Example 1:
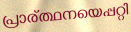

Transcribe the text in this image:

പ്രാര്ത്ഥനയെപ്പറ്റി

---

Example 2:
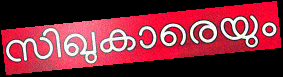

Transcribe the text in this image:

സിഖുകാരെയും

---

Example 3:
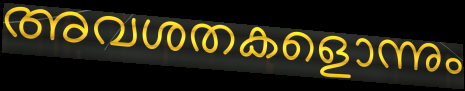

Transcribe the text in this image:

അവശതകളൊന്നും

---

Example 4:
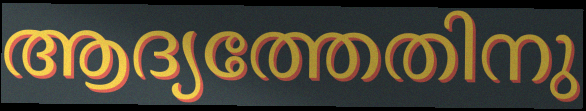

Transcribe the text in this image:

ആദ്യത്തേതിനു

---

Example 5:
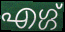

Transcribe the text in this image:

എഗ്ഗ്